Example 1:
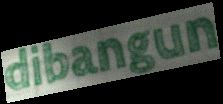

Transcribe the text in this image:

dibangun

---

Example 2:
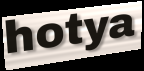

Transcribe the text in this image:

hotya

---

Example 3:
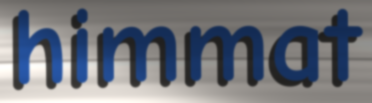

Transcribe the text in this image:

himmat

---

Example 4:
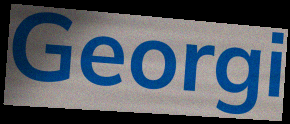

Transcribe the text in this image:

Georgi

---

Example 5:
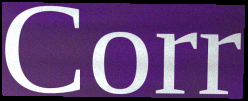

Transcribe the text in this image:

Corr